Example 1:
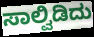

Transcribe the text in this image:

ಸಾಲ್ವಿಡಿದು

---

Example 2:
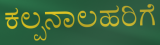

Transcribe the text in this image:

ಕಲ್ಪನಾಲಹರಿಗೆ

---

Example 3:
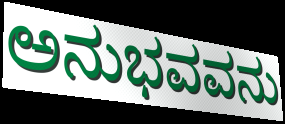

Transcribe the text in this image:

ಅನುಭವವನು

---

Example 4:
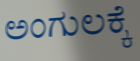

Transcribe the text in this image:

ಅಂಗುಲಕ್ಕೆ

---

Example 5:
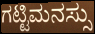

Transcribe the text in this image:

ಗಟ್ಟಿಮನಸ್ಸು